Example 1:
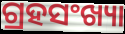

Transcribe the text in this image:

ଗ୍ରହସଂଖ୍ୟା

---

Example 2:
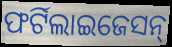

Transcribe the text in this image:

ଫର୍ଟିଲାଇଜେସନ୍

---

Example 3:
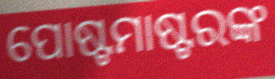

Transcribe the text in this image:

ପୋଷ୍ଟମାଷ୍ଟରଙ୍କ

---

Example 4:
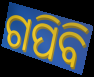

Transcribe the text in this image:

ଗପିବି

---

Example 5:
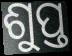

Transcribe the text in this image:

ଶୁପ୍ତ